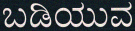
ಬಡಿಯುವ